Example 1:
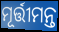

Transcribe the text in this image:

ମୂର୍ତ୍ତୀମନ୍ତ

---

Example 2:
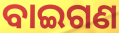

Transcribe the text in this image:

ବାଇଗଣ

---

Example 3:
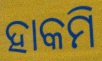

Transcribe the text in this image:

ହାକମି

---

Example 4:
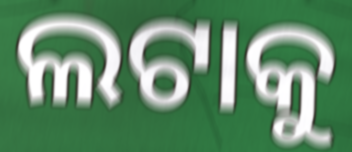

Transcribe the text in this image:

ଲଟାକୁ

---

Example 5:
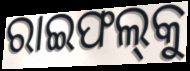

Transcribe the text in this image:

ରାଇଫଲ୍‍କୁ